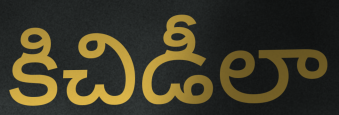
కిచిడీలా